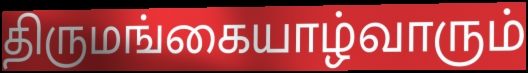
திருமங்கையாழ்வாரும்